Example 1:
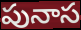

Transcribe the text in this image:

పునాస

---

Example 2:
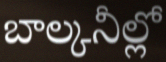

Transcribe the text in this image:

బాల్కనీల్లో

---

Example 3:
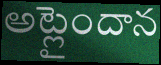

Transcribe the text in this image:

అట్లైందాన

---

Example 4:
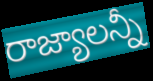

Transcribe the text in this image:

రాజ్యాలన్నీ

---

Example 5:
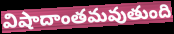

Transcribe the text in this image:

విషాదాంతమవుతుంది